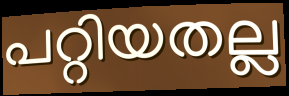
പറ്റിയതല്ല